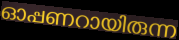
ഓപ്പണറായിരുന്ന